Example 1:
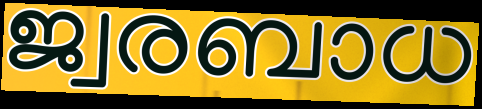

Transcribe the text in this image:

ജ്വരബാധ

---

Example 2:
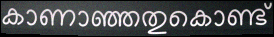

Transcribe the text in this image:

കാണാഞ്ഞതുകൊണ്ട്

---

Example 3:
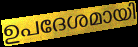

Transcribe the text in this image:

ഉപദേശമായി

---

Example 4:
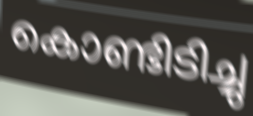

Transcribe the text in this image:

കൊണ്ടിടിച്ചു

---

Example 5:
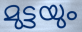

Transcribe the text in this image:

മുട്ടയും